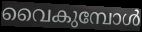
വൈകുമ്പോൾ